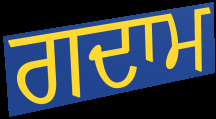
ਗਦਾਮ